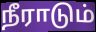
நீராடும்